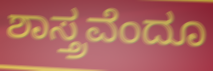
ಶಾಸ್ತ್ರವೆಂದೂ